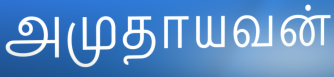
அமுதாயவன்